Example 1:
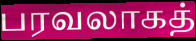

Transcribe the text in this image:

பரவலாகத்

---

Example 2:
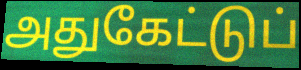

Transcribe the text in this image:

அதுகேட்டுப்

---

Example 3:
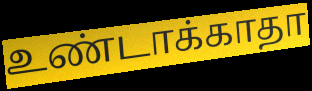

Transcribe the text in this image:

உண்டாக்காதா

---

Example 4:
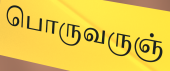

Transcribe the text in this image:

பொருவருஞ்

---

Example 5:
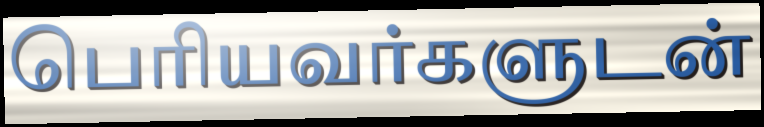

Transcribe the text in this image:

பெரியவர்களுடன்